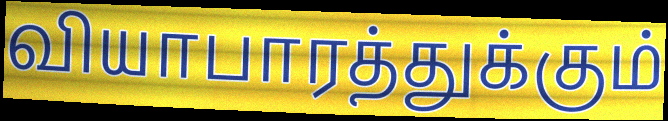
வியாபாரத்துக்கும்